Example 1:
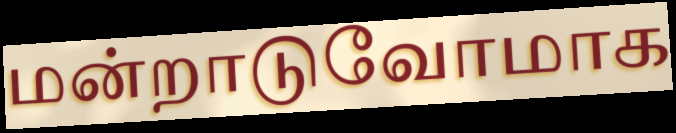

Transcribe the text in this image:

மன்றாடுவோமாக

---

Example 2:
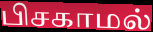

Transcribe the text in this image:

பிசகாமல்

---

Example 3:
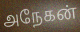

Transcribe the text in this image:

அநேகன்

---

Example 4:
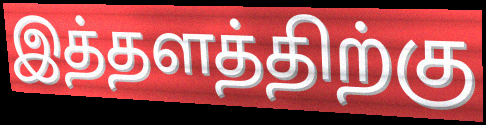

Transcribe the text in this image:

இத்தளத்திற்கு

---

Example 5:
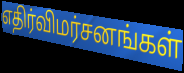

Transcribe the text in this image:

எதிர்விமர்சனங்கள்